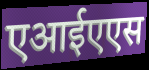
एआईएएस